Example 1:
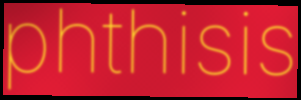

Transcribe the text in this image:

phthisis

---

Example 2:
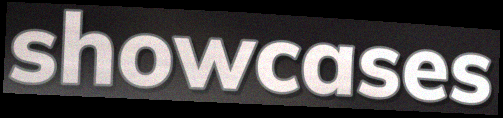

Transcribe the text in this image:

showcases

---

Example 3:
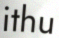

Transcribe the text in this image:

ithu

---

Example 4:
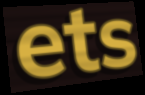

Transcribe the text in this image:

ets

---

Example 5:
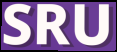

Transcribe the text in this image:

SRU